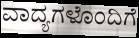
ವಾದ್ಯಗಳೊಂದಿಗೆ